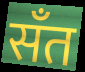
सँत